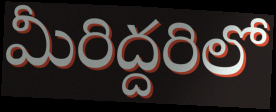
మీరిద్దరిలో